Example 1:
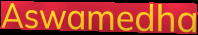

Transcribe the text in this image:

Aswamedha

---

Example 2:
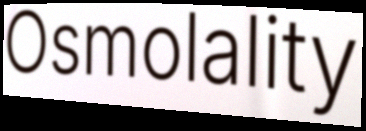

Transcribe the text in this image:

Osmolality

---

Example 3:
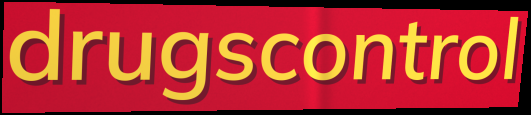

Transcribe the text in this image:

drugscontrol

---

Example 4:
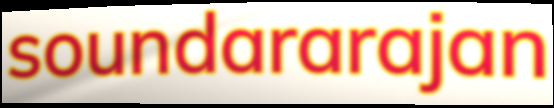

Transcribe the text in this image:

soundararajan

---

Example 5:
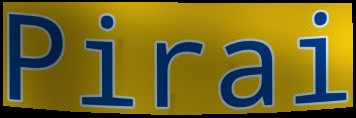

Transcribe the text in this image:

Pirai